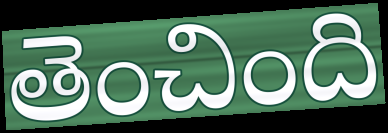
తెంచింది